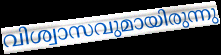
വിശ്വാസവുമായിരുന്നു